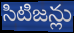
సిటిజన్లు